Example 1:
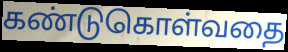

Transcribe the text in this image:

கண்டுகொள்வதை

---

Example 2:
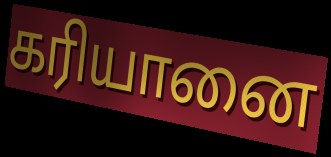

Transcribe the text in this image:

கரியானை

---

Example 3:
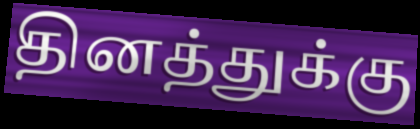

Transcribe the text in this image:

தினத்துக்கு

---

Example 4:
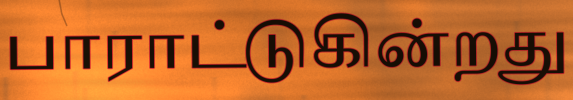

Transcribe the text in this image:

பாராட்டுகின்றது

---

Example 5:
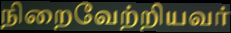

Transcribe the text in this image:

நிறைவேற்றியவர்